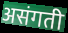
असंगती